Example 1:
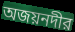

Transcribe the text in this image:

অজয়নদীর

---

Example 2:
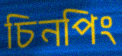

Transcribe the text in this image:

চিনপিং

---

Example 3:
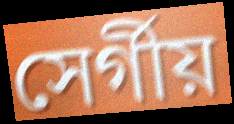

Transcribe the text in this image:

সের্গীয়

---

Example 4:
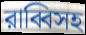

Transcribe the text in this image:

রাব্বিসহ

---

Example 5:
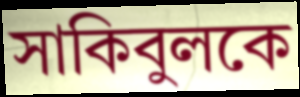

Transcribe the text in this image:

সাকিবুলকে